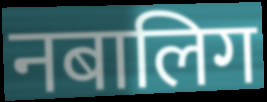
नबालिग